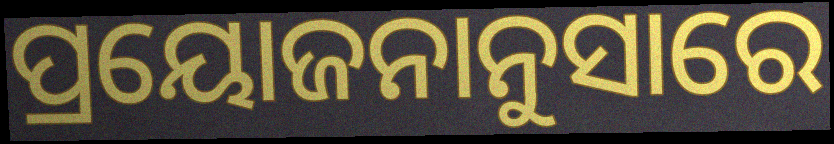
ପ୍ରୟୋଜନାନୁସାରେ